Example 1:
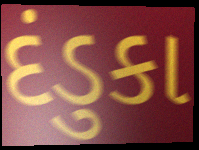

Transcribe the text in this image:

દંડુકા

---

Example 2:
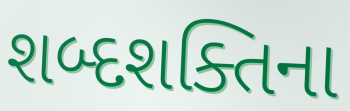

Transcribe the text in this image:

શબ્દશક્તિના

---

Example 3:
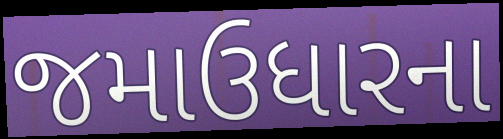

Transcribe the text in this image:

જમાઉધારના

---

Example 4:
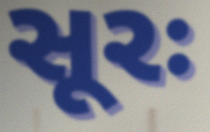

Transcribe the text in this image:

સૂરઃ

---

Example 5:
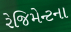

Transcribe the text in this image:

રેજિમેન્ટના